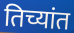
तिच्यांत